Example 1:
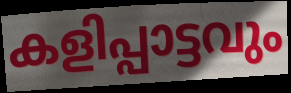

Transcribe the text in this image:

കളിപ്പാട്ടവും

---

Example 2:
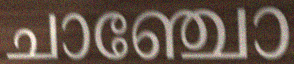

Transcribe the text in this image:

ചാഞ്ചോ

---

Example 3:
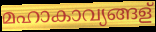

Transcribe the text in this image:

മഹാകാവ്യങ്ങള്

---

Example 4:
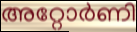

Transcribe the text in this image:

അറ്റോർണി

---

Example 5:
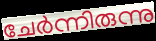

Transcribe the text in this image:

ചേർന്നിരുന്നു